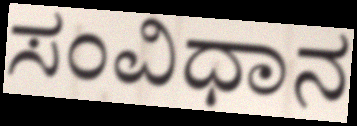
ಸಂವಿಧಾನ